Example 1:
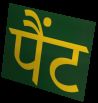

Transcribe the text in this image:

पैंट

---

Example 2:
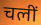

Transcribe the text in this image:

चलीं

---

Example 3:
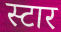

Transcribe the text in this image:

स्टार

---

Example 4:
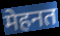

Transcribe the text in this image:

मेहनत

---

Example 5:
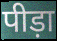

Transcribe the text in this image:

पीड़ा